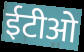
ईटीओ